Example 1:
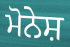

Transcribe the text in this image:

ਮੋਨੇਸ਼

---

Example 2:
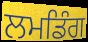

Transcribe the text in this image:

ਲਮਡਿੰਗ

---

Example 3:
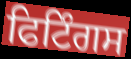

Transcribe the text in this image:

ਫਿਟਿੰਗਸ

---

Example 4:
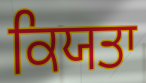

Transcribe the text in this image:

ਕਿਯਤਾ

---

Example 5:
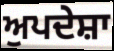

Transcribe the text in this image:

ਅੁਪਦੇਸ਼ਾ